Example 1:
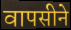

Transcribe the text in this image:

वापसीने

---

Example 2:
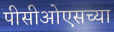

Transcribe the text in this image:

पीसीओएसच्या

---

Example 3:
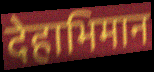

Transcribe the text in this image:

देहाभिमान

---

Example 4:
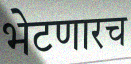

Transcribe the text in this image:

भेटणारच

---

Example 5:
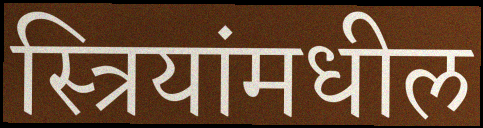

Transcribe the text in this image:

स्त्रियांमधील